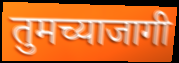
तुमच्याजागी